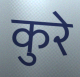
कुरे